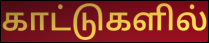
காட்டுகளில்